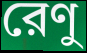
রেণু